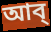
আব্